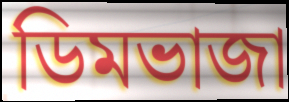
ডিমভাজা